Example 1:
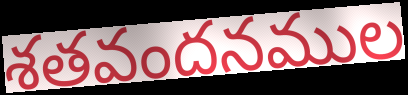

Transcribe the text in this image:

శతవందనముల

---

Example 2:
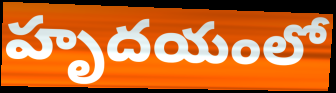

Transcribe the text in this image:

హృదయంలో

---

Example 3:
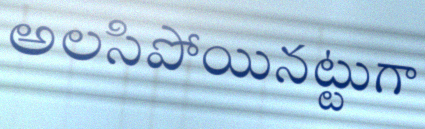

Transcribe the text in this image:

అలసిపోయినట్టుగా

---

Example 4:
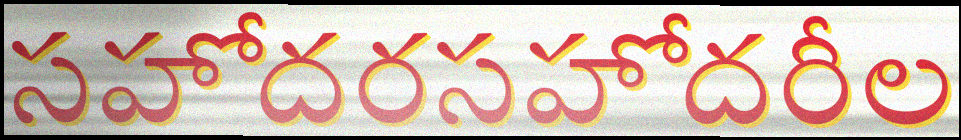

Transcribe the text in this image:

సహోదరసహోదరీల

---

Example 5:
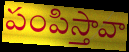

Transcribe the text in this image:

పంపిస్తావా